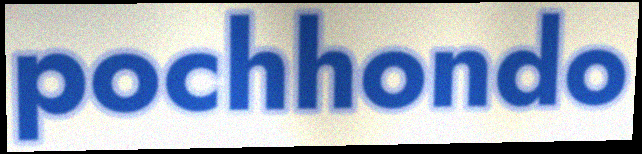
pochhondo